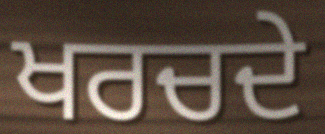
ਖਰਚਦੇ